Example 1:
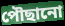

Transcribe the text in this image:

পৌছানো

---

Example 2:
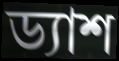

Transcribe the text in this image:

ড্যাশ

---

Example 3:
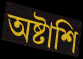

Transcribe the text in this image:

অষ্টাশি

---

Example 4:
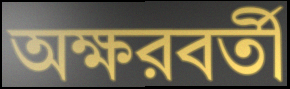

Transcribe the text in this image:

অক্ষরবর্তী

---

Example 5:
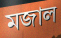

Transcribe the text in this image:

মজাল